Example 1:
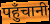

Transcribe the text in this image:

पहुँचानी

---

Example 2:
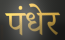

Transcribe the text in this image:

पंधेर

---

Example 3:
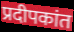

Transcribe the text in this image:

प्रदीपकांत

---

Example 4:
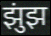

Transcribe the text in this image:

झुंझ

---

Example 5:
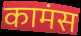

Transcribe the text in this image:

कामंस